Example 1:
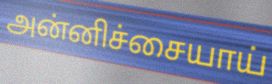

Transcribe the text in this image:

அன்னிச்சையாய்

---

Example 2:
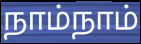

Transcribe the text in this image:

நாம்நாம்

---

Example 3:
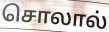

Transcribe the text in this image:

சொலால்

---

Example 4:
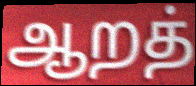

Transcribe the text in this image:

ஆறத்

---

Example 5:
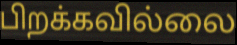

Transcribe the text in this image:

பிறக்கவில்லை